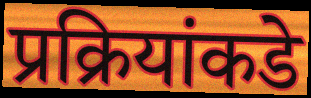
प्रक्रियांकडे